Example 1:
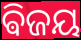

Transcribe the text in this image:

ଵିଜୟ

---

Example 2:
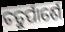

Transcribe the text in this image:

ଚତୁର୍ପାର୍ଶେ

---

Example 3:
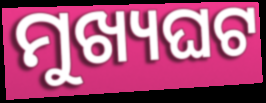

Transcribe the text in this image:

ମୁଖ୍ୟଘଟ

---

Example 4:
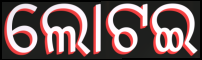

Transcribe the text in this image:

ଲୋଟଇ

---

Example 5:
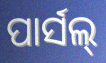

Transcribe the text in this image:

ପାର୍ସଲ୍